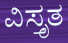
ವಿಸ್ತೃತ